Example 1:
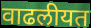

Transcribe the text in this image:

वाढलीयत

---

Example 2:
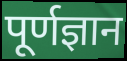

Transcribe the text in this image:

पूर्णज्ञान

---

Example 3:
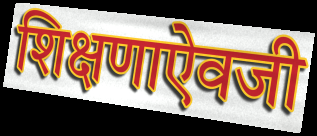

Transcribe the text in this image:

शिक्षणाऐवजी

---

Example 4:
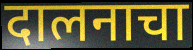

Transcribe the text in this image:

दालनाचा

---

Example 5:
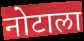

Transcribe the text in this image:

नोटाला